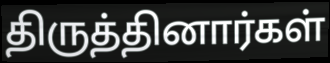
திருத்தினார்கள்